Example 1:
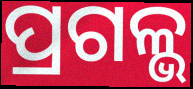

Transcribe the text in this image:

ପ୍ରଗଳ୍ଭ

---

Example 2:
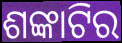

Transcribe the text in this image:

ଶଙ୍କାଟିର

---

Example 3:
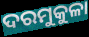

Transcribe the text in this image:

ଦରମୁକୁଳା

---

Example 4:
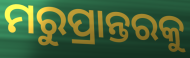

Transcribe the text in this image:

ମରୁପ୍ରାନ୍ତରକୁ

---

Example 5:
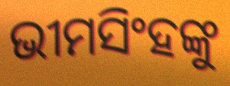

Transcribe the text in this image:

ଭୀମସିଂହଙ୍କୁ